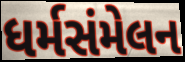
ધર્મસંમેલન